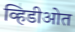
व्हिडीओत